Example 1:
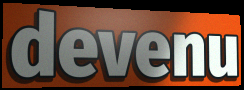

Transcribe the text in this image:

devenu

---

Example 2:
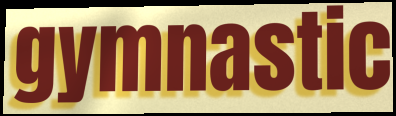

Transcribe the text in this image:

gymnastic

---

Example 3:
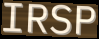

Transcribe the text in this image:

IRSP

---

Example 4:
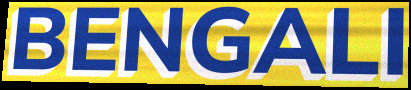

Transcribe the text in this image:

BENGALI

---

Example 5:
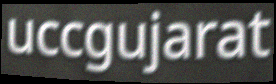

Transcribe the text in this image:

uccgujarat